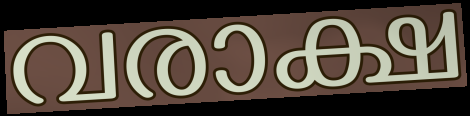
വരാക്ഷ